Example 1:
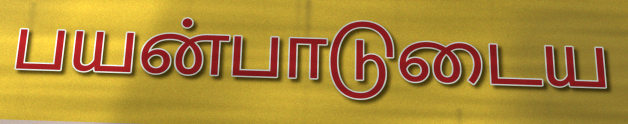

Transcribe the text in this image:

பயன்பாடுடைய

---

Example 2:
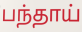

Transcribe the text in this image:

பந்தாய்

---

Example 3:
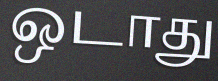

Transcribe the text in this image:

ஒடாது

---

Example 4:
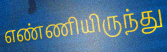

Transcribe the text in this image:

எண்ணியிருந்து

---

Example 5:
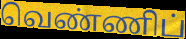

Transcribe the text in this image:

வெண்ணிப்